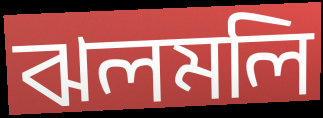
ঝলমলি